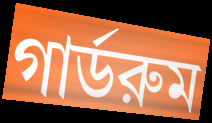
গার্ডরুম